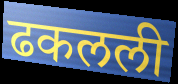
ढकलली